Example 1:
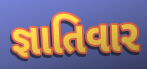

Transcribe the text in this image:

જ્ઞાતિવાર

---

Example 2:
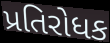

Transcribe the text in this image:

પ્રતિરોધક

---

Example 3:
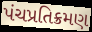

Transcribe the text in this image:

પંચપ્રતિક્રમણ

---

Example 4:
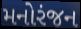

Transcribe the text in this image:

મનોરંજન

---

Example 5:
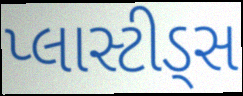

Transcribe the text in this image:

પ્લાસ્ટીડ્સ